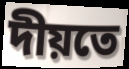
দীয়তে